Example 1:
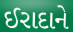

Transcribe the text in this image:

ઈરાદાને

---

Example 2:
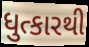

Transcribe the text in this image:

ધુત્કારથી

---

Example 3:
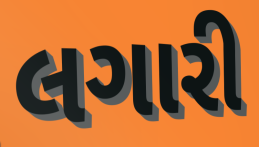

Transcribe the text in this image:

લગારી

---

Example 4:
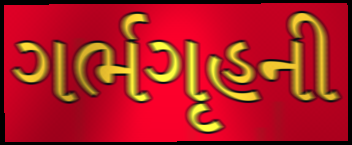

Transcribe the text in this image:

ગર્ભગૃહની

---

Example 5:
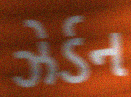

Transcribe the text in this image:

ઝેર્ડન